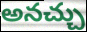
అనచ్చు